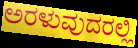
ಅರಳುವುದರಲ್ಲಿ